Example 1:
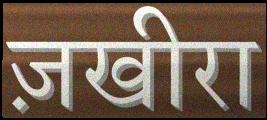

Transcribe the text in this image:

ज़खीरा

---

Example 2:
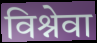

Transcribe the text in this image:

विश्नेवा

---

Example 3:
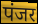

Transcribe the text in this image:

पंजर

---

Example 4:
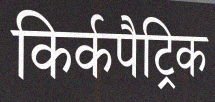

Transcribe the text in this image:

किर्कपैट्रिक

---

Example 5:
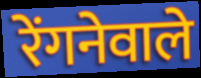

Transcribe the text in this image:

रेंगनेवाले